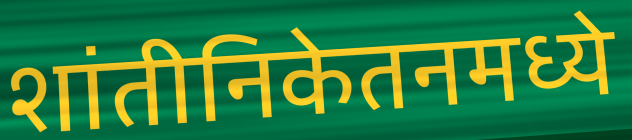
शांतीनिकेतनमध्ये